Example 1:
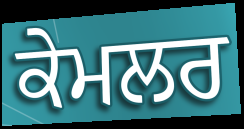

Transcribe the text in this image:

ਕੇਮਲਰ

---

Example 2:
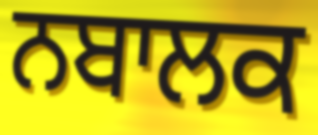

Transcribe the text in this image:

ਨਬਾਲਕ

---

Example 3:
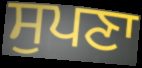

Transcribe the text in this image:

ਸੁਪਣਾ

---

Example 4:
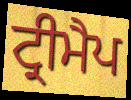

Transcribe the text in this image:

ਟ੍ਰੀਮੈਪ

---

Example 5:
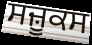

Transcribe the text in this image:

ਸਜ਼ੂਕਸ